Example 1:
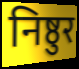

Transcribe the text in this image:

निष्ठुर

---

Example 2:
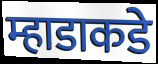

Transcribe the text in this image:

म्हाडाकडे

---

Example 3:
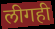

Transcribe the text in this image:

लीगही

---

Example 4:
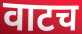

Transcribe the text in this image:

वाटच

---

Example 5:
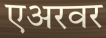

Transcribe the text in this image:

एअरवर